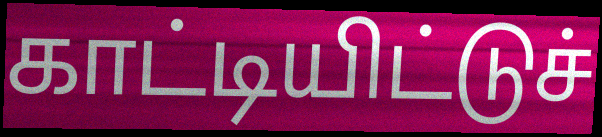
காட்டியிட்டுச்